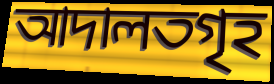
আদালতগৃহ